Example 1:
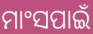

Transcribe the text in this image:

ମାଂସପାଇଁ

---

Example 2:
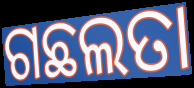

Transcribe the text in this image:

ଗଛଲତା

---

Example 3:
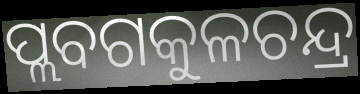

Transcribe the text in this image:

ପ୍ଲବଗକୁଳଚନ୍ଦ୍ର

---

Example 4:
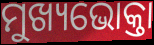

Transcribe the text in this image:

ମୁଖ୍ୟଭୋକ୍ତା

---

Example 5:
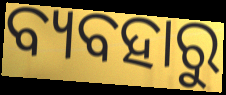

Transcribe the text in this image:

ବ୍ୟବହାରୁ